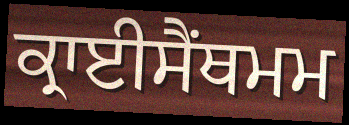
ਕ੍ਰਾਈਸੈਂਥਮਮ